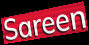
Sareen